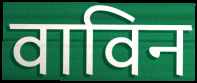
वाविन